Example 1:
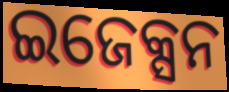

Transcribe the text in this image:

ଇଜେକ୍ସନ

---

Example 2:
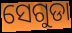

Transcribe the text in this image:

ସେଗୁଡା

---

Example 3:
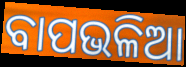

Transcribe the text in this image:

ବାପଭଳିଆ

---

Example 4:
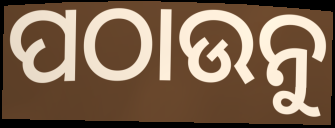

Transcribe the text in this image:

ପଠାଉନୁ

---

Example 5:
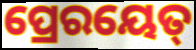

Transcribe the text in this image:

ପ୍ରେରୟେତ୍